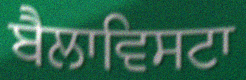
ਬੈਲਾਵਿਸਟਾ